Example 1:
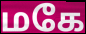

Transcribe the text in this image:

மகே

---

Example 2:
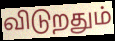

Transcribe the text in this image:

விடுறதும்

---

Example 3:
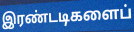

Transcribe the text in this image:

இரண்டடிகளைப்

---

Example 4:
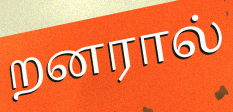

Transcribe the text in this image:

றனரால்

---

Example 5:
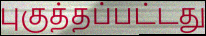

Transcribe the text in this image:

புகுத்தப்பட்டது